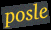
posle